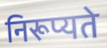
निरूप्यते